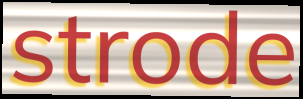
strode